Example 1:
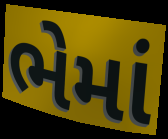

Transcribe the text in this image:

ભેમાં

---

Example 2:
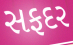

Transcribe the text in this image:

સફદર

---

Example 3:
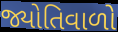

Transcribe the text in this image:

જ્યોતિવાળો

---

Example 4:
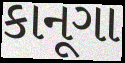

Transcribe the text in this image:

કાનૂગા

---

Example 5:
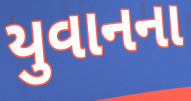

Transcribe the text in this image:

યુવાનના